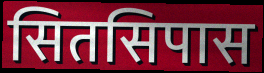
सितसिपास